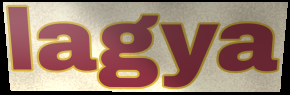
lagya